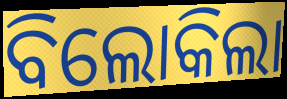
ବିଲୋକିଲା